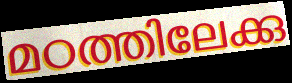
മഠത്തിലേക്കു